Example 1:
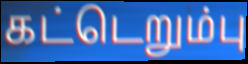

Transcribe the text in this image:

கட்டெறும்பு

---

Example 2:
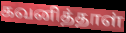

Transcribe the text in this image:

கவனித்தாள்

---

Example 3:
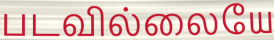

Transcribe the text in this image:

படவில்லையே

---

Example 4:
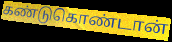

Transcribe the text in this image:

கண்டுகொண்டான்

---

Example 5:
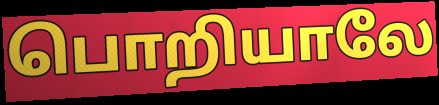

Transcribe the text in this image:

பொறியாலே